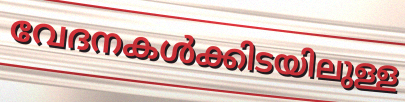
വേദനകൾക്കിടയിലുള്ള